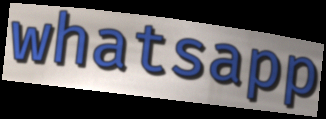
whatsapp